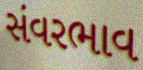
સંવરભાવ